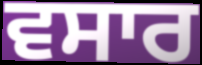
ਵਸਾਰ